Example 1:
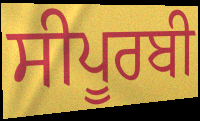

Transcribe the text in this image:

ਸੀਪੂਰਬੀ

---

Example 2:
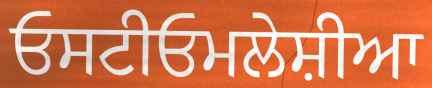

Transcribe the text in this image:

ਓਸਟੀਓਮਲੇਸ਼ੀਆ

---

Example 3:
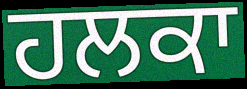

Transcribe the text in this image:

ਹਲਕਾ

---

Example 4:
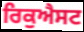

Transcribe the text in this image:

ਰਿਕੁਐਸਟ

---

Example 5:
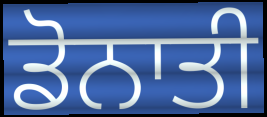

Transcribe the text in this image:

ਡੋਨਾਤੀ